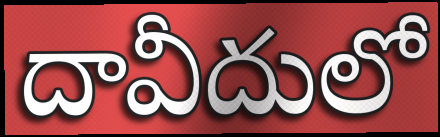
దావీదులో